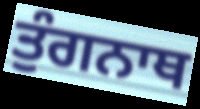
ਤੁੰਗਨਾਥ